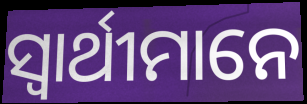
ସ୍ଵାର୍ଥୀମାନେ